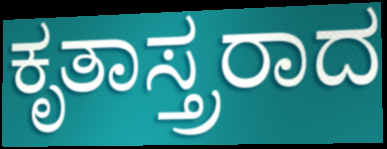
ಕೃತಾಸ್ತ್ರರಾದ